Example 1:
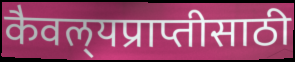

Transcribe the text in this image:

कैवल्यप्राप्तीसाठी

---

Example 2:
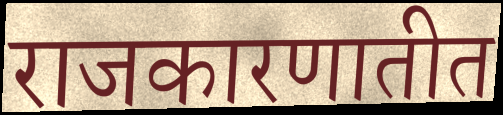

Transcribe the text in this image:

राजकारणातीत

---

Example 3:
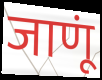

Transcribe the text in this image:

जाणूं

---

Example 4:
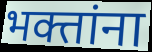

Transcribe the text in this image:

भक्तांना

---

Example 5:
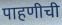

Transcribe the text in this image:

पाहणीची